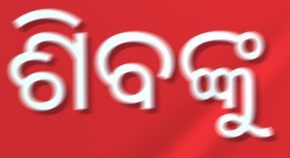
ଶିବଙ୍କୁ